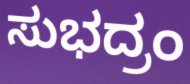
ಸುಭದ್ರಂ